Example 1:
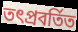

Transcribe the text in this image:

তৎপ্রবর্তিত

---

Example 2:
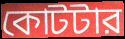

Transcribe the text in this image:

কোটটার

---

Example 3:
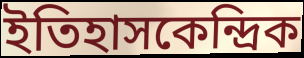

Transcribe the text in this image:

ইতিহাসকেন্দ্রিক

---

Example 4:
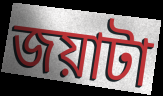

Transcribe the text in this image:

জয়াটা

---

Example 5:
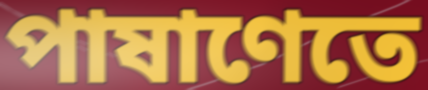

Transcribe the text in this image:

পাষাণেতে